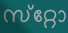
സ്‌റ്റോ